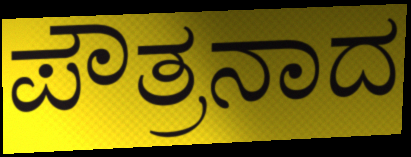
ಪೌತ್ರನಾದ